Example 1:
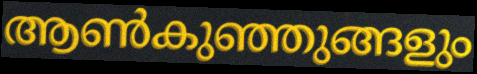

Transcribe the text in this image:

ആൺകുഞ്ഞുങ്ങളും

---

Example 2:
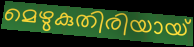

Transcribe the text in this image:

മെഴുകുതിരിയായ്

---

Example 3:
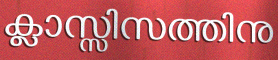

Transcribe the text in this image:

ക്ലാസ്സിസത്തിനു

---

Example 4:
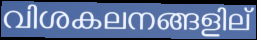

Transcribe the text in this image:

വിശകലനങ്ങളില്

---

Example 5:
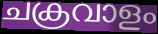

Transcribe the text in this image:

ചക്രവാളം